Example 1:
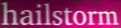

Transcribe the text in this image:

hailstorm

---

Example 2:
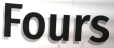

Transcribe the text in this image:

Fours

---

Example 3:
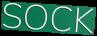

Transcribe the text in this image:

SOCK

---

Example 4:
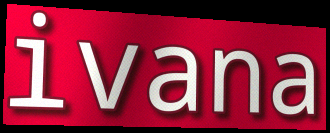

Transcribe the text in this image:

ivana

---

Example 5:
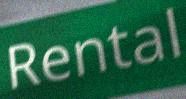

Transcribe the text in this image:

Rental